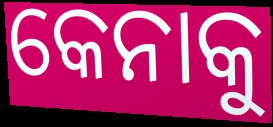
କେନାକୁ